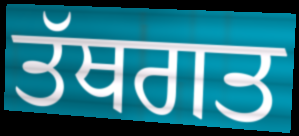
ਤੱਥਗਤ